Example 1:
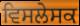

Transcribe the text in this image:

ਵਿਸਲੇਸਕ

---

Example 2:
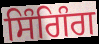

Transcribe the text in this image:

ਸਿੰਗਿੰਗ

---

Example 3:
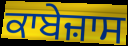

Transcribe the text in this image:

ਕਾਬੇਜ਼ਾਸ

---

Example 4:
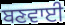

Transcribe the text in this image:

ਬਣਵਾਈ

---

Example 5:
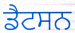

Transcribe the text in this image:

ਡੈਟਸਨ